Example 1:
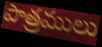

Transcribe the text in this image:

పాత్రములు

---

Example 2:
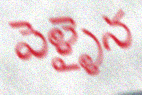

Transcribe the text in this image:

పెళ్ళైన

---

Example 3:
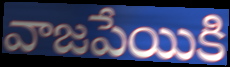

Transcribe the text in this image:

వాజపేయికి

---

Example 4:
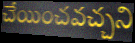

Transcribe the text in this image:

చేయించవచ్చని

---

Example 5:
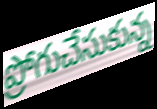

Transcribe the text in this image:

ప్రోగుచేసుకున్న